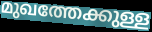
മുഖത്തേക്കുള്ള